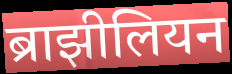
ब्राझीलियन